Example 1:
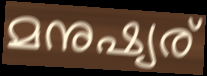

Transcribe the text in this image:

മനുഷ്യര്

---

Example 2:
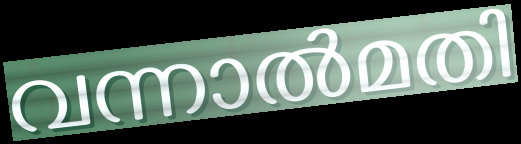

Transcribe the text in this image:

വന്നാൽമതി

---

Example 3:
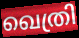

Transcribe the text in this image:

ഖെത്രി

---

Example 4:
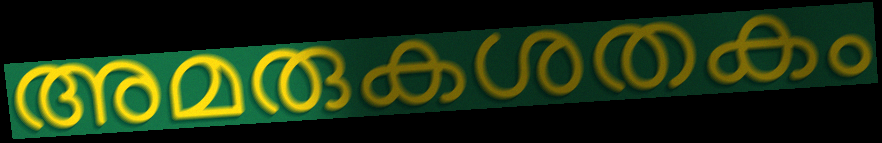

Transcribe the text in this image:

അമരുകശതകം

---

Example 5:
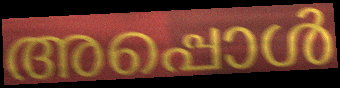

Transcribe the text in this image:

അപ്പൊൾ